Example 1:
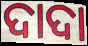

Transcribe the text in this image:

ଦାଦା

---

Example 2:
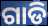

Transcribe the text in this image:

ଗାଡି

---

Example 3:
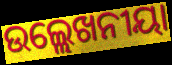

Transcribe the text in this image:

ଉଲ୍ଲେଖନୀୟା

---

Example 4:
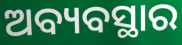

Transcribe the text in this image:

ଅବ୍ୟବସ୍ଥାର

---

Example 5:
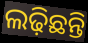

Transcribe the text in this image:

ଲଢ଼ିଛନ୍ତି